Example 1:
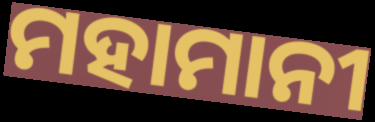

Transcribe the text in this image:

ମହାମାନୀ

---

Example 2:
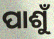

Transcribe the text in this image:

ପାଶୁଁ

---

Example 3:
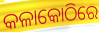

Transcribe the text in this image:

କଳାକୋଠିରେ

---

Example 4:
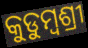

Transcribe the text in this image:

କୁଡୁମ୍ବଶ୍ରୀ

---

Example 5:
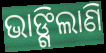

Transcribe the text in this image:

ଭାଙ୍ଗିଲାଣି